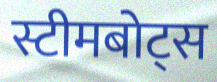
स्टीमबोट्स